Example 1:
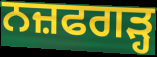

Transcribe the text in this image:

ਨਜ਼ਫਗੜ੍ਹ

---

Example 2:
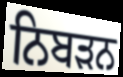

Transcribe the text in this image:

ਨਿਬੜਨ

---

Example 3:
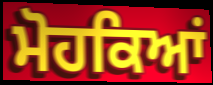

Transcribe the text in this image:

ਮੋਹਕਿਆਂ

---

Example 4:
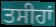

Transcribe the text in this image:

ਤਸੀਹਾਂ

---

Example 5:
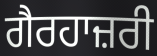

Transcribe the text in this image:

ਗੈਰਹਾਜ਼ਰੀ